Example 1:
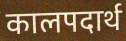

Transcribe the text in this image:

कालपदार्थ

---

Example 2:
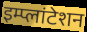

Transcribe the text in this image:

इम्प्लांटेशन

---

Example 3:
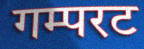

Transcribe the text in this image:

गम्परट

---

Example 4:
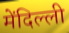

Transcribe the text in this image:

मेंदिल्ली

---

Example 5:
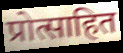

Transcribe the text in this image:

प्रोत्‍साहित